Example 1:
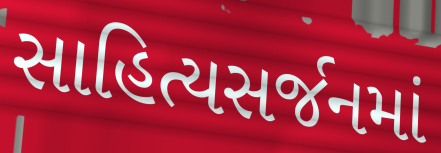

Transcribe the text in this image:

સાહિત્યસર્જનમાં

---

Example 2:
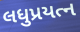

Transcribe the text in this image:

લધુપ્રયત્ન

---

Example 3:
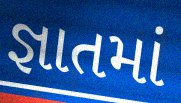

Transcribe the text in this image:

જ્ઞાતમાં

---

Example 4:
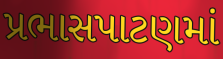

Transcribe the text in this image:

પ્રભાસપાટણમાં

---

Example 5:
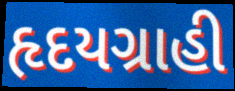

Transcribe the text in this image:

હૃદયગ્રાહી